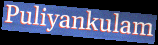
Puliyankulam